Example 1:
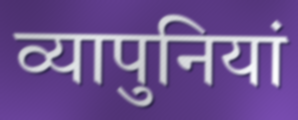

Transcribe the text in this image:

व्यापुनियां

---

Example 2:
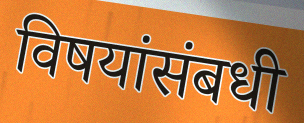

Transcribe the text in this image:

विषयांसंबधी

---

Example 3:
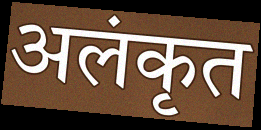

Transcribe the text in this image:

अलंकृत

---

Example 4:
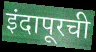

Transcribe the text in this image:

इंदापूरची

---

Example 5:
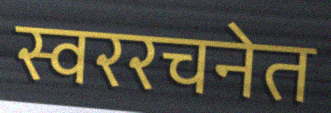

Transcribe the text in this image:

स्वररचनेत